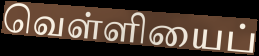
வெள்ளியைப்